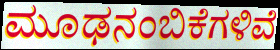
ಮೂಢನಂಬಿಕೆಗಳಿವೆ